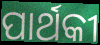
ପାର୍ଥକୀ